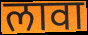
लावा